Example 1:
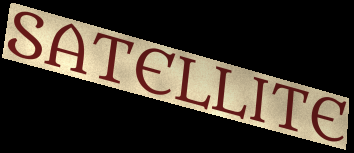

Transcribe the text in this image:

SATELLITE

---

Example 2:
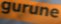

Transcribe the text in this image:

gurune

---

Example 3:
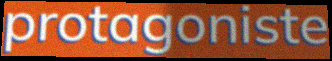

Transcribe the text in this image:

protagoniste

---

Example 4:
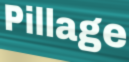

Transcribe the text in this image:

Pillage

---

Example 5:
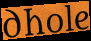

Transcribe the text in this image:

dhole